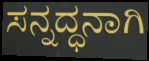
ಸನ್ನದ್ಧನಾಗಿ